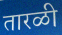
तारळी